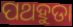
ପଥହୁଡା